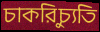
চাকরিচ্যুতি